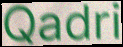
Qadri